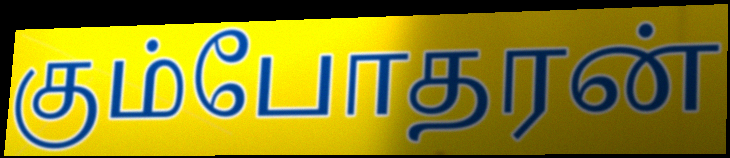
கும்போதரன்